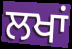
ਲਖਾਂ